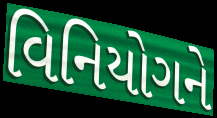
વિનિયોગને